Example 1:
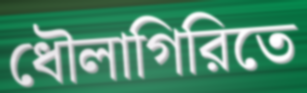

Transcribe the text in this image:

ধৌলাগিরিতে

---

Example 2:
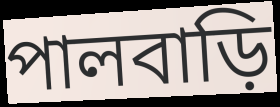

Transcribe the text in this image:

পালবাড়ি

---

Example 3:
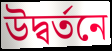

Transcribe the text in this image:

উদ্বর্তনে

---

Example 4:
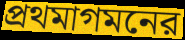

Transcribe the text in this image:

প্রথমাগমনের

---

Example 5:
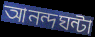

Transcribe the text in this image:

আনন্দঘন্টা